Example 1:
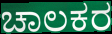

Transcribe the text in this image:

ಚಾಲಕರ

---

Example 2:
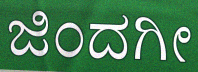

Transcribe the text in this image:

ಜಿಂದಗೀ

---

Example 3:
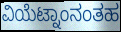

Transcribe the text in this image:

ವಿಯೆಟ್ನಾಂನಂತಹ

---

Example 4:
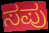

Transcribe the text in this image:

ಸಪು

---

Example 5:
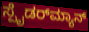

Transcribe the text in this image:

ಸ್ಪೈಡರ್‌ಮ್ಯಾನ್